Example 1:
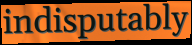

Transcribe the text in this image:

indisputably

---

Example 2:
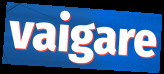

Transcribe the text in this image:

vaigare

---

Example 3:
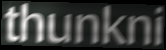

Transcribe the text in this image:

thunkni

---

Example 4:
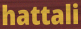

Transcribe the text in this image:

hattali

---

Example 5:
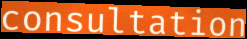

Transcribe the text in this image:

consultation